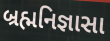
બ્રહ્મનિજ્ઞાસા